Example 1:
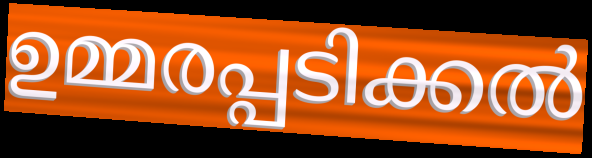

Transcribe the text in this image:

ഉമ്മരപ്പടിക്കൽ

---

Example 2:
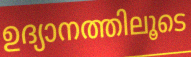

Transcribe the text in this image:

ഉദ്യാനത്തിലൂടെ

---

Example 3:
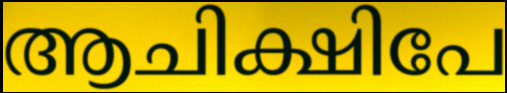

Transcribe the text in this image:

ആചിക്ഷിപേ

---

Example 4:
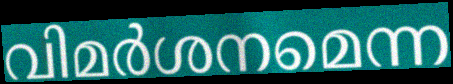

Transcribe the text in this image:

വിമർശനമെന്ന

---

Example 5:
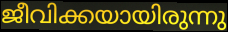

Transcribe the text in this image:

ജീവിക്കയായിരുന്നു